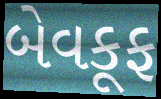
બેવકૂફ